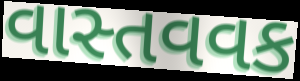
વાસ્તવવક